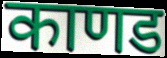
काणड